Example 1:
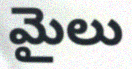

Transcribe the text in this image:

మైలు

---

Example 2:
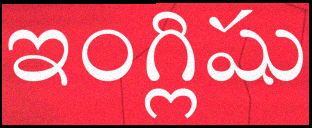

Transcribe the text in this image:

ఇంగ్లిషు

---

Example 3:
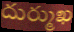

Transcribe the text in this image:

దుర్ముఖ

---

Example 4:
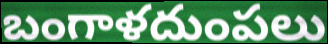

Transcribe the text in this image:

బంగాళదుంపలు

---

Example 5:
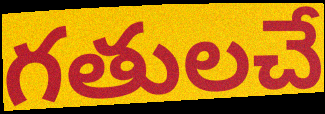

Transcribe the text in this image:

గతులచే